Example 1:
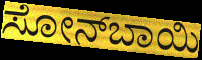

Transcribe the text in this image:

ಸೋನ್‍ಬಾಯಿ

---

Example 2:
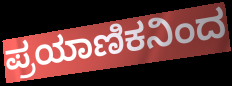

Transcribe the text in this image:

ಪ್ರಯಾಣಿಕನಿಂದ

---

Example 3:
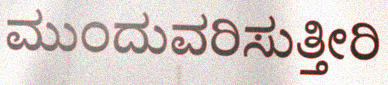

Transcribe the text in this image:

ಮುಂದುವರಿಸುತ್ತೀರಿ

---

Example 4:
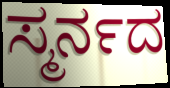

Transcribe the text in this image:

ಸ್ಮರ್ನದ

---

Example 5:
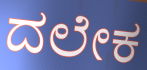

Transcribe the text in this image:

ದಲೇಕ